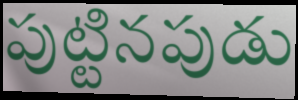
పుట్టినపుడు